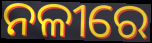
ନଳୀରେ